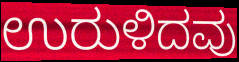
ಉರುಳಿದವು